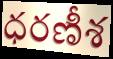
ధరణీశ